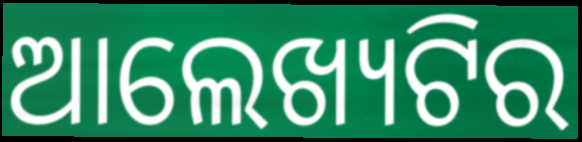
ଆଲେଖ୍ୟଟିର